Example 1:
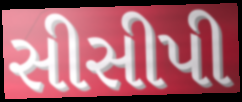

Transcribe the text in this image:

સીસીપી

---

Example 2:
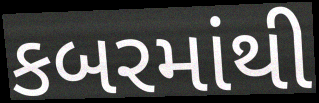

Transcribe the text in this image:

કબરમાંથી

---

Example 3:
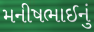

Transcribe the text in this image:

મનીષભાઈનું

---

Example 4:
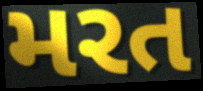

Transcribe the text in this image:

મરત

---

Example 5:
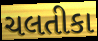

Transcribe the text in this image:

ચલતીકા